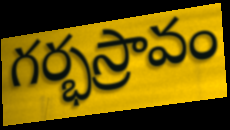
గర్భస్రావం